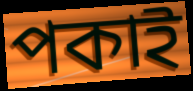
পকাই